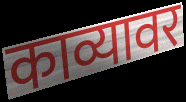
काव्यावर